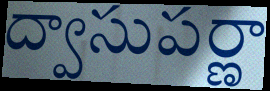
ద్వాసుపర్ణా